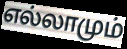
எல்லாமும்